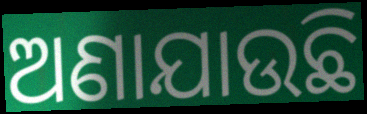
ଅଣାଯାଉଛି